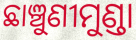
ଛାଞ୍ଚୁଣୀମୁଣ୍ଡା